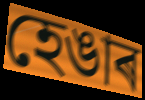
হেঙাৰ